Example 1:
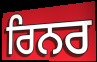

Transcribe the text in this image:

ਰਿਨਰ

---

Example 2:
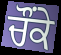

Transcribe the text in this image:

ਚੌਂਕੇ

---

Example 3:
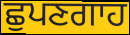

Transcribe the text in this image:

ਛੁਪਣਗਾਹ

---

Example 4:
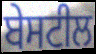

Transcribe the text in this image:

ਬੇਸਟੀਲ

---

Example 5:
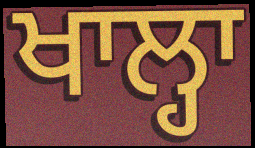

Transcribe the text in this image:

ਖਾਲ੍ਹਾ